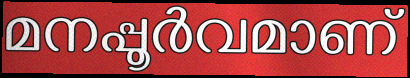
മനപ്പൂർവമാണ്